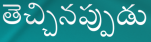
తెచ్చినప్పుడు